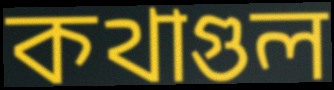
কথাগুল